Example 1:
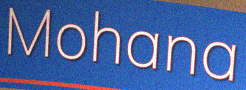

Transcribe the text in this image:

Mohana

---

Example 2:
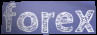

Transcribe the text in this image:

forex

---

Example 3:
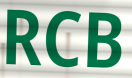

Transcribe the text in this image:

RCB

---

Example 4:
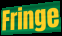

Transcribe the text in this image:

Fringe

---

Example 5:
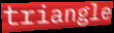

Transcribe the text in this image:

triangle